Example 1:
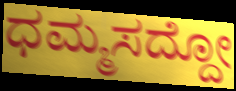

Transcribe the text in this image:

ಧಮ್ಮಸದ್ದೋ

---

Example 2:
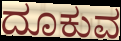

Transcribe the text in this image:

ದೂಕುವ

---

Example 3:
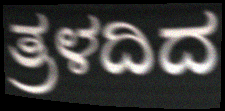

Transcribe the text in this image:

ತ್ರಳದಿದ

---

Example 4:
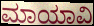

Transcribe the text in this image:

ಮಾಯಾವಿ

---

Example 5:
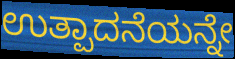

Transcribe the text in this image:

ಉತ್ಪಾದನೆಯನ್ನೇ